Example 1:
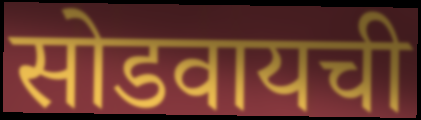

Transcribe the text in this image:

सोडवायची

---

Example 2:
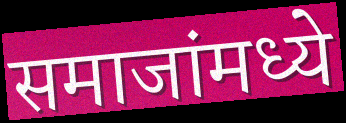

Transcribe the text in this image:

समाजांमध्ये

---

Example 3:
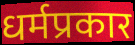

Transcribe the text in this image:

धर्मप्रकार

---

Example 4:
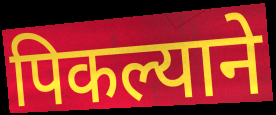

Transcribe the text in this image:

पिकल्याने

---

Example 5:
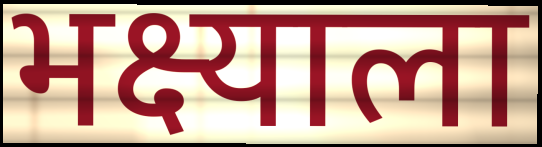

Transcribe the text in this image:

भक्ष्याला